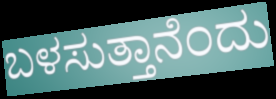
ಬಳಸುತ್ತಾನೆಂದು